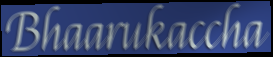
Bhaarukaccha